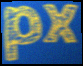
px